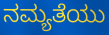
ನಮ್ಯತೆಯು